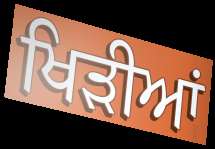
ਖਿੜੀਆਂ